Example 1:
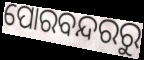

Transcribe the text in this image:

ପୋରବନ୍ଦରରୁ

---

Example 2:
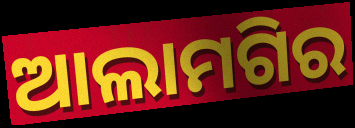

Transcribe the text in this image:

ଆଲାମଗିର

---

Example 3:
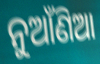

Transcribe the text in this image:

ନୁଆଁଣିଆ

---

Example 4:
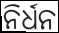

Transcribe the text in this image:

ନିର୍ଧନ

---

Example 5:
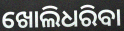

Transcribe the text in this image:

ଖୋଲିଧରିବା